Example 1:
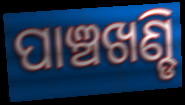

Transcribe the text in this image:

ପାଞ୍ଚଖଣ୍ଡି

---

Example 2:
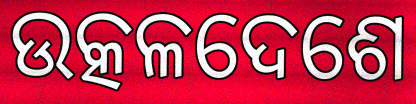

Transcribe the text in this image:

ଉତ୍କଳଦେଶେ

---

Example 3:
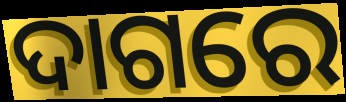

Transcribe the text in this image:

ଦାଗରେ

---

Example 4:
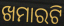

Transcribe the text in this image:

ଖମାରଟି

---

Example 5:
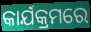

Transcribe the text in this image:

କାର୍ଯକ୍ରମରେ